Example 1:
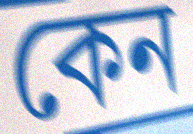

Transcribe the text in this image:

কেন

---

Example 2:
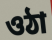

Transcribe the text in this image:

ওঠা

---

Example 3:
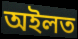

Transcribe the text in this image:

অইলত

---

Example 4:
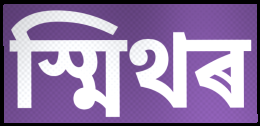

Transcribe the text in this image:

স্মিথৰ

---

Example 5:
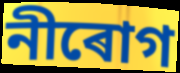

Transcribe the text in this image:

নীৰোগ